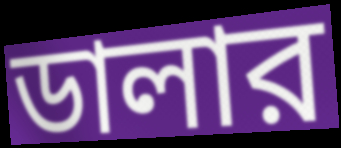
ডালার